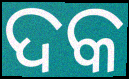
ଦକ